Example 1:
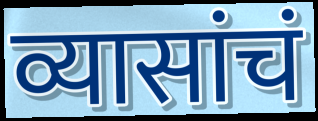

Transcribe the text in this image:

व्यासांचं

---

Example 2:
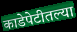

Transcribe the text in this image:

काडेपेटीतल्या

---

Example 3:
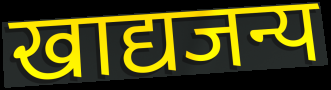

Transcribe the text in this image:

खाद्यजन्य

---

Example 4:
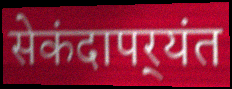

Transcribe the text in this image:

सेकंदापर्यंत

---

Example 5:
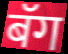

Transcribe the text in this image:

बॅग